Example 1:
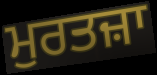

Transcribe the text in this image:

ਮੁਰਤਜ਼ਾ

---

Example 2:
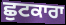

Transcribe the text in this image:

ਛੁਟਕਾਰਾ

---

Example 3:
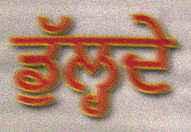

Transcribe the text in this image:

ਡੁੱਲ੍ਹਦੇ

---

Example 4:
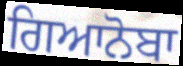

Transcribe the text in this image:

ਗਿਆਨੋਬਾ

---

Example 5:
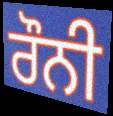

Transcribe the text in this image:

ਰੌਨੀ